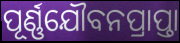
ପୂର୍ଣ୍ଣଯୌବନପ୍ରାପ୍ତା